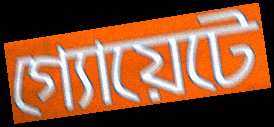
গ্যোয়েটে